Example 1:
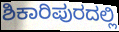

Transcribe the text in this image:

ಶಿಕಾರಿಪುರದಲ್ಲಿ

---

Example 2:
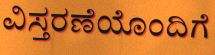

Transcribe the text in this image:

ವಿಸ್ತರಣೆಯೊಂದಿಗೆ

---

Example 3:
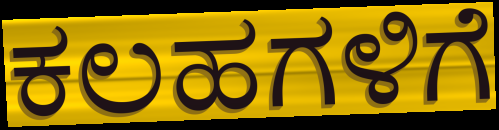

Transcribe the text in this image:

ಕಲಹಗಳಿಗೆ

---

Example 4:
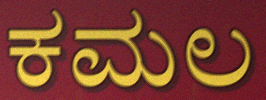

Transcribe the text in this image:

ಕಮಲ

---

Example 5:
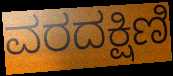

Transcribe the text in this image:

ವರದಕ್ಷಿಣಿ